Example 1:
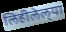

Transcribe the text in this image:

लिहीलेल्या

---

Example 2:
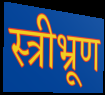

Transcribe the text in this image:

स्त्रीभ्रूण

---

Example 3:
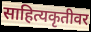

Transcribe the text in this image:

साहित्यकृतीवर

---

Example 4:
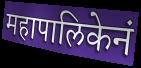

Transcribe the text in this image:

महापालिकेनं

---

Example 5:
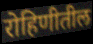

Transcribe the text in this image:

रोहिणीतील